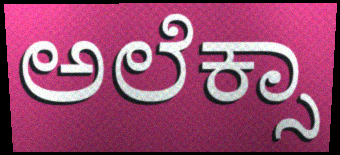
ಅಲೆಕ್ಸಾ